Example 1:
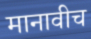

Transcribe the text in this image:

मानावीच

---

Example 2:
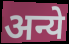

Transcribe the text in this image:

अन्ये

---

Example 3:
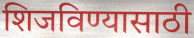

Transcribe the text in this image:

शिजविण्यासाठी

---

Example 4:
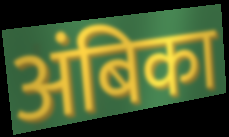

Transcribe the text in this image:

अंबिका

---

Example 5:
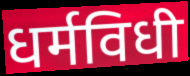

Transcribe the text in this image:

धर्मविधी